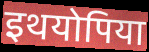
इथयोपिया